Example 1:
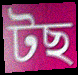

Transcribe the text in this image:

টছ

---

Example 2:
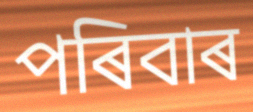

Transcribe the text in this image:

পৰিবাৰ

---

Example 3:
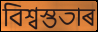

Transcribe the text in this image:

বিশ্বস্ততাৰ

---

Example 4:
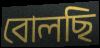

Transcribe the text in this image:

বোলছি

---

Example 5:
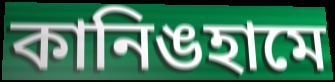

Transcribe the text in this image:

কানিঙহামে